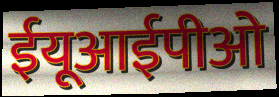
ईयूआईपीओ